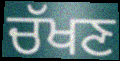
ਚੱਖਣ